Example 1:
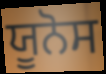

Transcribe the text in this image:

ਯੂਨੋਸ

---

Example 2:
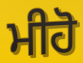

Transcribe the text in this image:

ਮੀਹੋ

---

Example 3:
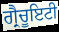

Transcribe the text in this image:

ਗ੍ਰੈਚੂਇਟੀ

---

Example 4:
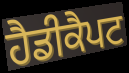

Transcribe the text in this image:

ਹੈਡੀਕੈਪਟ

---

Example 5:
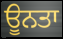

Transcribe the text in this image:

ਊਨਤਾ